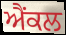
ਐਂਕਲ